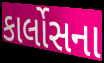
કાર્લોસના